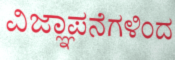
ವಿಜ್ಞಾಪನೆಗಳಿಂದ